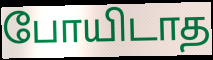
போயிடாத